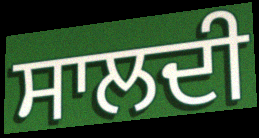
ਸਾਲਦੀ